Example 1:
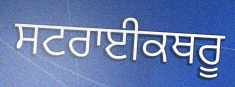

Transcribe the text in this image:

ਸਟਰਾਈਕਥਰੂ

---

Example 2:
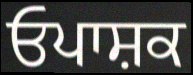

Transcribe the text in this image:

ਓਪਾਸ਼ਕ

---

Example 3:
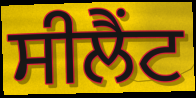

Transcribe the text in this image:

ਸੀਲੈਂਟ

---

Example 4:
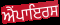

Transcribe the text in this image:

ਐਂਪਾਇਰਸ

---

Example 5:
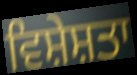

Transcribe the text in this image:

ਵਿਸ਼ੇਸ਼ਤਾ